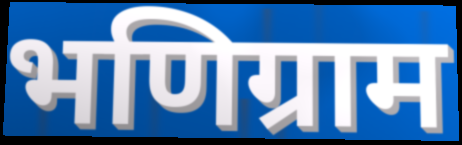
भणिग्राम